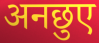
अनछुए